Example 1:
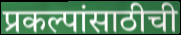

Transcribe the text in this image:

प्रकल्पांसाठीची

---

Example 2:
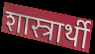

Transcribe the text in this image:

शास्त्रार्थी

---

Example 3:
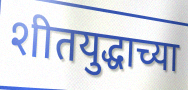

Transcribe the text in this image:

शीतयुद्धाच्या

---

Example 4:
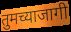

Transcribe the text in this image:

तुमच्याजागी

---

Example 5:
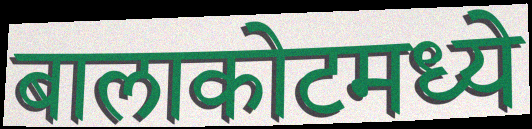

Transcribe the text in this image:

बालाकोटमध्ये